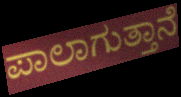
ಪಾಲಾಗುತ್ತಾನೆ